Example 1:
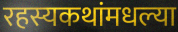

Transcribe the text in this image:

रहस्यकथांमधल्या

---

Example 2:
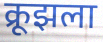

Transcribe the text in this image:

क्रूझला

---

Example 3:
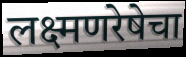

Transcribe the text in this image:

लक्ष्मणरेषेचा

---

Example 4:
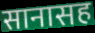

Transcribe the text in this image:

सानासह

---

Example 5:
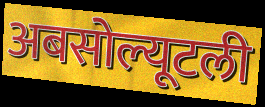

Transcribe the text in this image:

अबसोल्यूटली